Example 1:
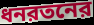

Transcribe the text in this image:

ধনরতনের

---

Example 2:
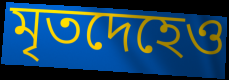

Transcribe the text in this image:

মৃতদেহেও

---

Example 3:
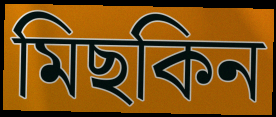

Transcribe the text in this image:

মিছকিন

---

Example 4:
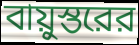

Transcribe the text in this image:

বায়ুস্তরের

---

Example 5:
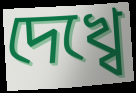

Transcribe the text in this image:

দেখ্বে